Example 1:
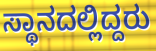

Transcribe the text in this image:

ಸ್ಥಾನದಲ್ಲಿದ್ದರು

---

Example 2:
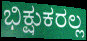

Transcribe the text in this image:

ಭಿಕ್ಷುಕರಲ್ಲ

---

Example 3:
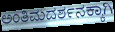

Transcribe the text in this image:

ಅಂತಿಮದರ್ಶನಕ್ಕಾಗಿ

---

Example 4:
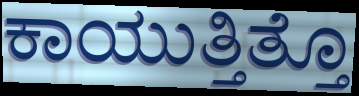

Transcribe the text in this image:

ಕಾಯುತ್ತಿತ್ತೊ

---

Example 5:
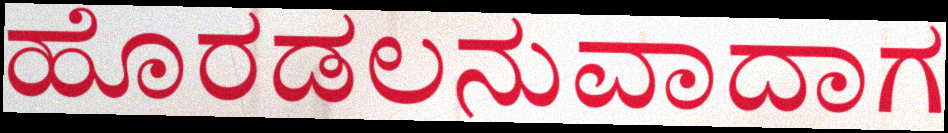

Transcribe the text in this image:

ಹೊರಡಲನುವಾದಾಗ